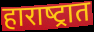
हाराष्ट्रात